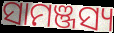
ସାମଞ୍ଜସ୍ୟ